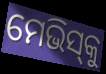
ମେଭିସ୍‌କୁ